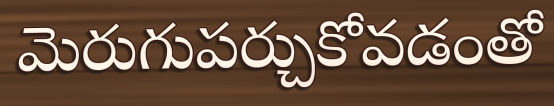
మెరుగుపర్చుకోవడంతో